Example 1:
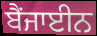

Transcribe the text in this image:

ਬੈਂਜਾਈਨ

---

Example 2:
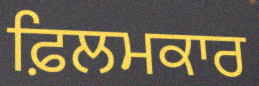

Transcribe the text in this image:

ਫ਼ਿਲਮਕਾਰ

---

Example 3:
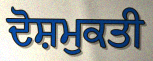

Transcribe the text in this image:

ਦੋਸ਼ਮੁਕਤੀ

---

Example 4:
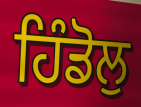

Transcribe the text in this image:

ਹਿੰਡੋਲੁ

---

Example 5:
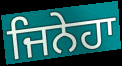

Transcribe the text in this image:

ਜਿਨੇਹਾ